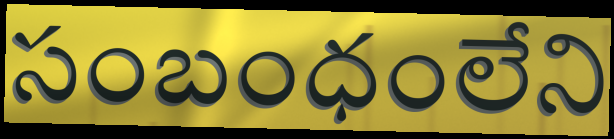
సంబంధంలేని